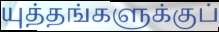
யுத்தங்களுக்குப்